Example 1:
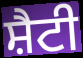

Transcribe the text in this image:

ਸ਼ੈਟੀ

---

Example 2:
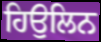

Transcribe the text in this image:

ਹਿਉਲਿਨ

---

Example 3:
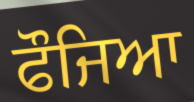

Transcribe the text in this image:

ਫੌਜਿਆ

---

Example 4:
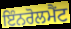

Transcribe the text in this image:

ਇੰਨਰੋਲਮੈਂਟ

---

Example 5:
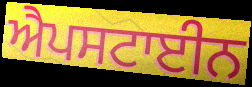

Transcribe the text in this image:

ਐਪਸਟਾਈਨ